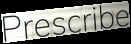
Prescribe